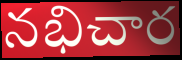
నభిచార